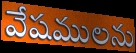
వేషములను